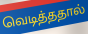
வெடித்ததால்